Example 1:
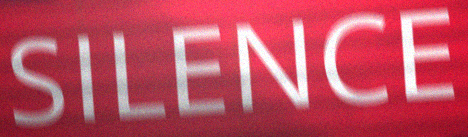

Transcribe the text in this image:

SILENCE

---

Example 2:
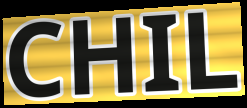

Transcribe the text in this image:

CHIL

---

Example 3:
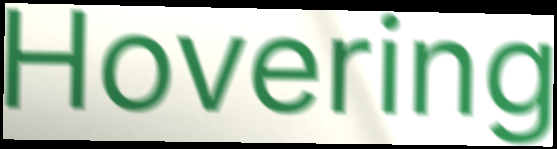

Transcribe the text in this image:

Hovering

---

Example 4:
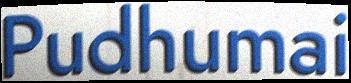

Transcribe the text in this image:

Pudhumai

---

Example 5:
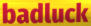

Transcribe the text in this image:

badluck